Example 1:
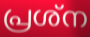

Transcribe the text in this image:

പ്രശ്‌ന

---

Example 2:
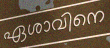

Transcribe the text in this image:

ഏശാവിനെ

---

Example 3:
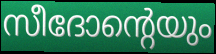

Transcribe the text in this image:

സീദോന്റെയും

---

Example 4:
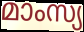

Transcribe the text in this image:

മാംസ്യ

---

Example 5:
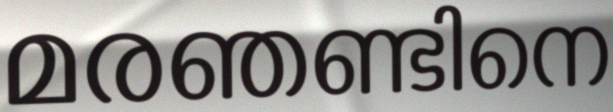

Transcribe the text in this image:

മരഞണ്ടിനെ